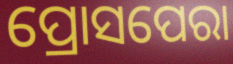
ପ୍ରୋସପେରା